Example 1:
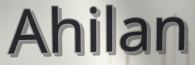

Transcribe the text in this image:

Ahilan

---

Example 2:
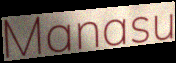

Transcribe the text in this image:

Manasu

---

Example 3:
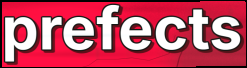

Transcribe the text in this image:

prefects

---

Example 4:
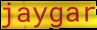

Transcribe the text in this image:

jaygar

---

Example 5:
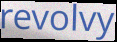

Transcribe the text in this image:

revolvy